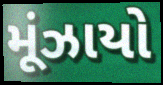
મૂંઝાયો